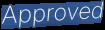
Approved